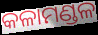
କଳାମଣ୍ଡଳ